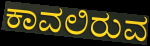
ಕಾವಲಿರುವ